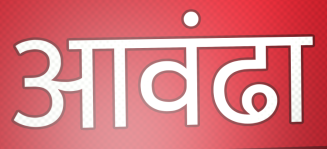
आवंढा